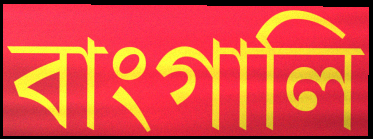
বাংগালি